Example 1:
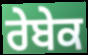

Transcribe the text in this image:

ਰੇਬੇਕ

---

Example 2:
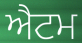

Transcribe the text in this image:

ਐਟਮ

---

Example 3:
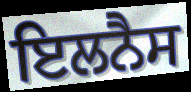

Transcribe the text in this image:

ਇਲਨੈਸ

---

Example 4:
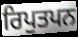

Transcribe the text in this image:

ਰਿਪੁਤਪਨ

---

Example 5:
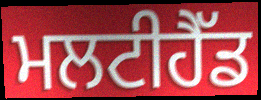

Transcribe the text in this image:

ਮਲਟੀਹੈੱਡ